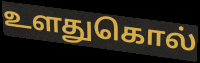
உளதுகொல்